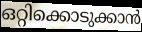
ഒറ്റിക്കൊടുക്കാൻ